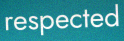
respected